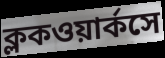
ক্লকওয়ার্কসে